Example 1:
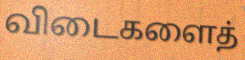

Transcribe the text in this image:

விடைகளைத்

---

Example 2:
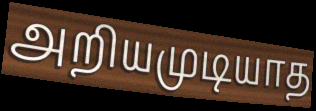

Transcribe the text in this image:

அறியமுடியாத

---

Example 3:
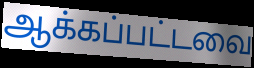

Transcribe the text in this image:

ஆக்கப்பட்டவை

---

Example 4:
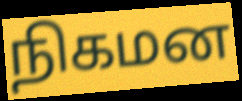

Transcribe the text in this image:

நிகமன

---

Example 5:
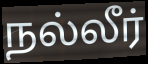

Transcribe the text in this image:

நல்லீர்